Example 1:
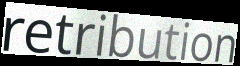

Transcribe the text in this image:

retribution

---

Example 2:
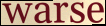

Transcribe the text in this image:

warse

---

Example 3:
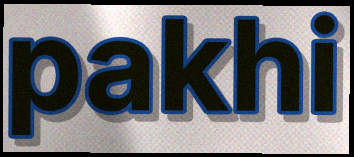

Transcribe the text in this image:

pakhi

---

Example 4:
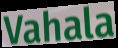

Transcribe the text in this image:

Vahala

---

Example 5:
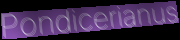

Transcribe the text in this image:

Pondicerianus